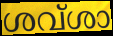
ശവ്ശാ